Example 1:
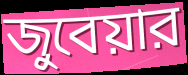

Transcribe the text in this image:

জুবেয়ার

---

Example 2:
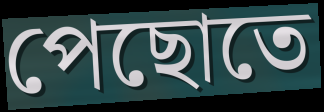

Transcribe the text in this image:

পেছোতে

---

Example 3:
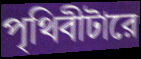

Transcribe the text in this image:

পৃথিবীটারে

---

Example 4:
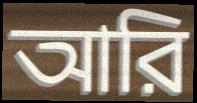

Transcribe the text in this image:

আরি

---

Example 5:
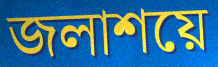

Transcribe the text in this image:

জলাশয়ে